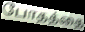
போதத்தை